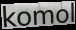
komol